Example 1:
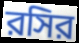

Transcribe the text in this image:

রসির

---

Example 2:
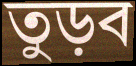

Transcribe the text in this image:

তুড়ব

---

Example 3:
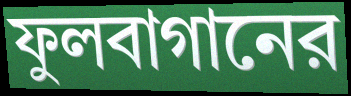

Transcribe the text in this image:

ফুলবাগানের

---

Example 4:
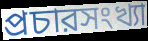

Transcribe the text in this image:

প্রচারসংখ্যা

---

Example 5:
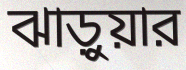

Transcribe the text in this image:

ঝাড়ুয়ার